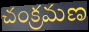
చంక్రమణ